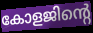
കോളജിന്റെ